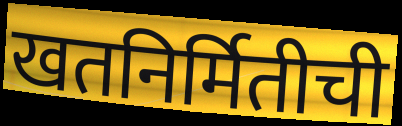
खतनिर्मितीची